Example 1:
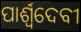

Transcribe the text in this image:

ପାର୍ଶ୍ୱଦେବୀ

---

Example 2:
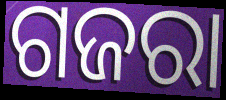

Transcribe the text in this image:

ଗଜରା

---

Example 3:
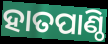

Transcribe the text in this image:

ହାତପାଣ୍ଠି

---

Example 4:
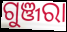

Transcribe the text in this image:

ଗୁଞ୍ଜରା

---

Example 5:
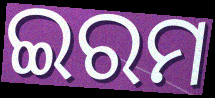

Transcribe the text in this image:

ଇରମ